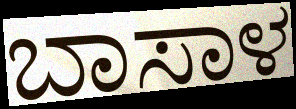
ಬಾಸಾಳ